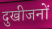
दुखीजनों